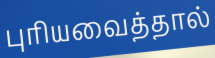
புரியவைத்தால்